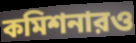
কমিশনারও